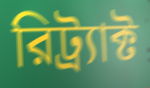
রিট্র্যাক্ট